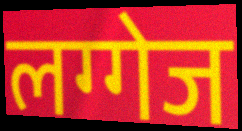
लग्गेज